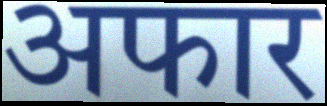
अफार